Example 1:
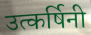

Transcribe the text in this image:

उत्कर्षिनी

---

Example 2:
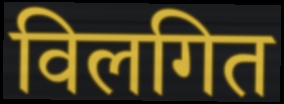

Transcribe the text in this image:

विलगित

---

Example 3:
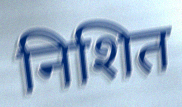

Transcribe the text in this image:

निशित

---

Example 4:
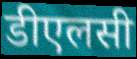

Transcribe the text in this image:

डीएलसी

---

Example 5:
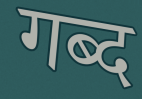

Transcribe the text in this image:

गब्द